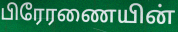
பிரேரணையின்